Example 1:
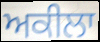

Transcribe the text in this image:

ਅਕੀਲਾ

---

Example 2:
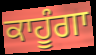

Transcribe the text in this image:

ਕਾਹੂੰਗਾ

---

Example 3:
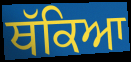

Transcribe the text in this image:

ਥੱਕਿਆ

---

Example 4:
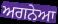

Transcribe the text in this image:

ਅਗਨੇਆ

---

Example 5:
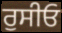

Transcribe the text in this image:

ਰੁਸੀਓ